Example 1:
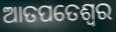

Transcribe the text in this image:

ଆତପତେଶ୍ୱର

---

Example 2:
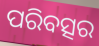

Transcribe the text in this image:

ପରିବତ୍ସର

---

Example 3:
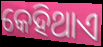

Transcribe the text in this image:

କେହିଥାଏ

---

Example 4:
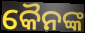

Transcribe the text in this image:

କୈନଙ୍କ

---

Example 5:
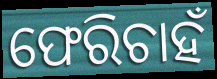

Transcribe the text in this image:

ଫେରିଚାହଁ